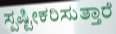
ಸ್ಪಷ್ಟೀಕರಿಸುತ್ತಾರೆ